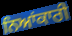
ਨਿਆਂਕਾਰੀ